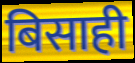
बिसाही